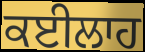
ਕਈਲਾਹ